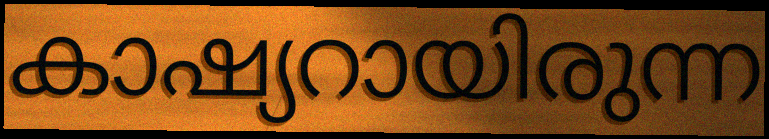
കാഷ്യറായിരുന്ന